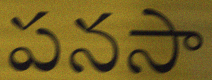
పనసా